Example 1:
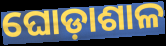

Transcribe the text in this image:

ଘୋଡ଼ାଶାଳ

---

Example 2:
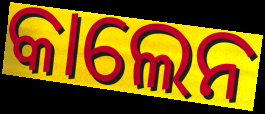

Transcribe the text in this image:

କାଲେନ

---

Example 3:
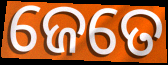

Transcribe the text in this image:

ଜେତେ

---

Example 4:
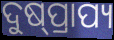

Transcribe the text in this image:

ଦୁଷ୍‌ପ୍ରାପ୍ୟ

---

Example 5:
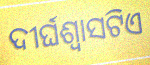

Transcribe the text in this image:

ଦୀର୍ଘଶ୍ୱାସଟିଏ